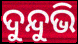
ଦୁନ୍ଦୁଭି